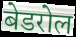
बेडरोल